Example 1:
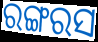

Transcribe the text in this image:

ରଙ୍ଗରସ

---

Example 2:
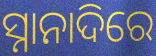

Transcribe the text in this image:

ସ୍ନାନାଦିରେ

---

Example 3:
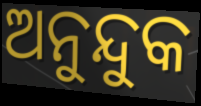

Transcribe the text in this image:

ଅନୁନ୍ଦୁକ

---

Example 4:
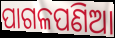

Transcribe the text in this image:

ପାଗଳପଣିଆ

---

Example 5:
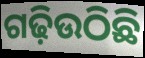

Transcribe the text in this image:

ଗଢ଼ିଉଠିଛି